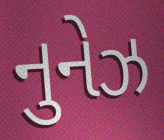
નુનેઝ